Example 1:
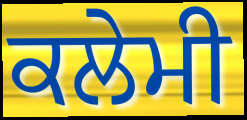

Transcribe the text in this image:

ਕਲੇਮੀ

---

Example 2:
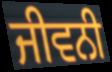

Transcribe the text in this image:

ਜੀਵਨੀ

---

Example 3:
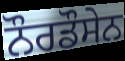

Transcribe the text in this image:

ਨੌਰਡੌਸੇਨ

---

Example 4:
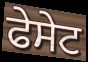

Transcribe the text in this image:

ਫੇਸੇਟ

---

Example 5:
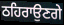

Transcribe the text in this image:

ਠਹਿਰਾਉਣਗੇ